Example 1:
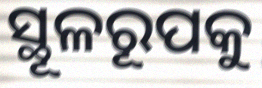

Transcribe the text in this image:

ସ୍ଥୂଳରୂପକୁ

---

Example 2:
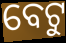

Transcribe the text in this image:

ବେଟୁ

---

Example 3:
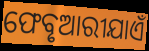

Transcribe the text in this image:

ଫେବୃଆରୀଯାଏଁ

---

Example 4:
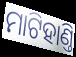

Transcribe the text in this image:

ମାଟିହାଣ୍ତି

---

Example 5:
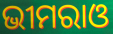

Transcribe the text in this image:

ଭୀମରାଓ